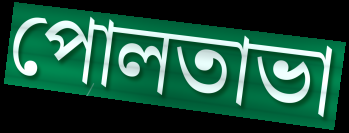
পোলতাভা